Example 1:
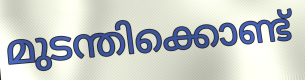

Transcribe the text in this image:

മുടന്തിക്കൊണ്ട്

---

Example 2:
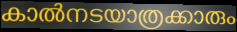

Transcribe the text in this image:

കാൽനടയാത്രക്കാരും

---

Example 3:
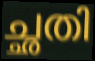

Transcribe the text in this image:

ച്ഛതി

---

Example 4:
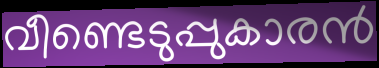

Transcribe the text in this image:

വീണ്ടെടുപ്പുകാരൻ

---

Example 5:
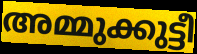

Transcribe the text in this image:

അമ്മുക്കുട്ടീ